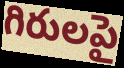
గిరులపై